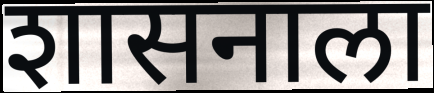
शासनाला